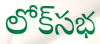
లోక్‌సభ